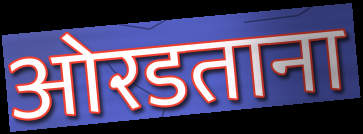
ओरडताना